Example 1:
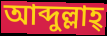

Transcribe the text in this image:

আব্দুল্লাহ্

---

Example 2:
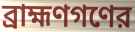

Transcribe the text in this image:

ব্রাহ্মণগণের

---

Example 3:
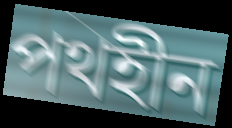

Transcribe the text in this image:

পথহীন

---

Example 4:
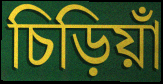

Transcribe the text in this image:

চিড়িয়াঁ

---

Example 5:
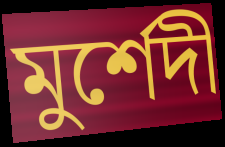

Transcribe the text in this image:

মুর্শেদী